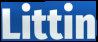
Littin